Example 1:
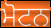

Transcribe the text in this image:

ਮੋਟਨ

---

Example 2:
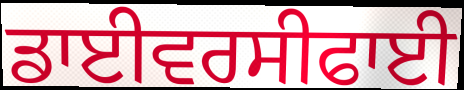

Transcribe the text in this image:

ਡਾਈਵਰਸੀਫਾਈ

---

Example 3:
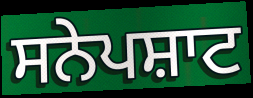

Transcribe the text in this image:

ਸਨੇਪਸ਼ਾਟ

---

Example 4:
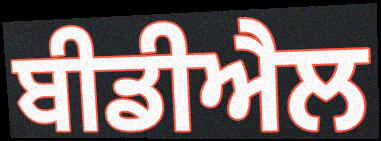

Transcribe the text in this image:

ਬੀਡੀਐਲ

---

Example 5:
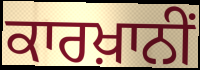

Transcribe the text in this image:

ਕਾਰਖ਼ਾਨੀਂ